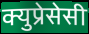
क्युप्रेसेसी